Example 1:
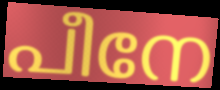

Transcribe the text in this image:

പീനേ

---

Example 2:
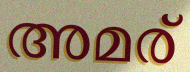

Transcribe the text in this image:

അമര്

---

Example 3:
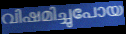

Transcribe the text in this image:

വിഷമിച്ചുപോയ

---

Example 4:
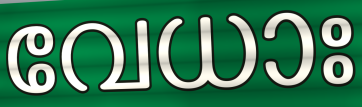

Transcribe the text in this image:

വേധാഃ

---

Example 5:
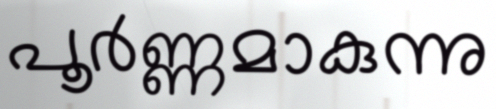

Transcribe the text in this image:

പൂർണ്ണമാകുന്നു